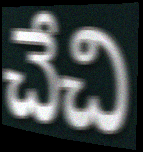
చేచి